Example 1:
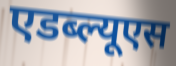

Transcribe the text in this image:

एडब्ल्यूएस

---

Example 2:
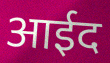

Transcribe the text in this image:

आईद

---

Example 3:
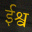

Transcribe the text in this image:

ईश्व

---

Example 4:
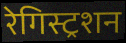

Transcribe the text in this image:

रेगिस्ट्रशन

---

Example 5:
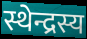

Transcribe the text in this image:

स्थेन्द्रस्य